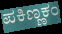
ಪಕಿಣ್ಣಕಂ